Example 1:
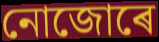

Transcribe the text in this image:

নোজোৰে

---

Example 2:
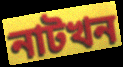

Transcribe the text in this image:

নাটখন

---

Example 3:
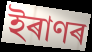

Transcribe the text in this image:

ইৰাণৰ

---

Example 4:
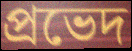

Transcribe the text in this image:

প্ৰভেদ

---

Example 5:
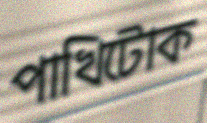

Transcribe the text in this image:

পাখিটোক